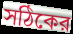
সঠিকের